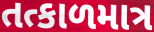
તત્કાળમાત્ર